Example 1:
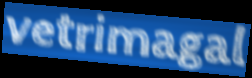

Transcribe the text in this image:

vetrimagal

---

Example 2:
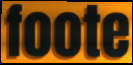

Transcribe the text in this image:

foote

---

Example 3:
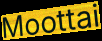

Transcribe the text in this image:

Moottai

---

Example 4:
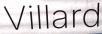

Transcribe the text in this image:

Villard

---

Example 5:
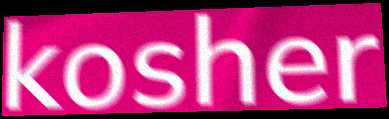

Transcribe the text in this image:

kosher